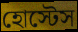
হোস্টেস